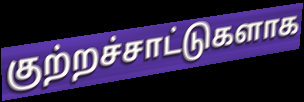
குற்றச்சாட்டுகளாக